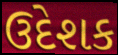
ઉદેશક